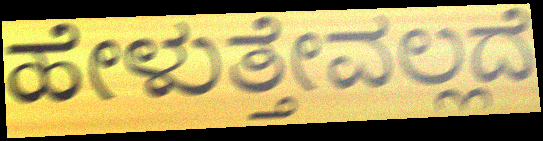
ಹೇಳುತ್ತೇವಲ್ಲದೆ